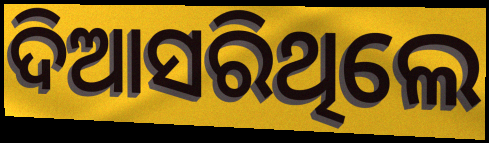
ଦିଆସରିଥିଲେ